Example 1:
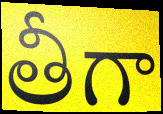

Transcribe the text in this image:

తీగా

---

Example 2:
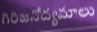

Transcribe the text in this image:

గిరిజనోద్యమాలు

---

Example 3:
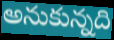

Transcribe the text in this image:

అనుకున్నది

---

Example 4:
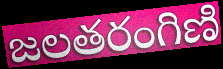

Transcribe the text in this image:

జలతరంగిణి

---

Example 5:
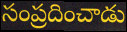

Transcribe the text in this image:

సంప్రదించాడు